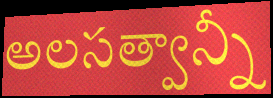
అలసత్వాన్నీ